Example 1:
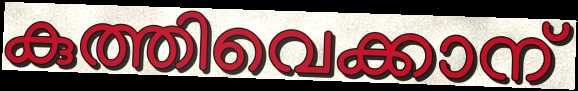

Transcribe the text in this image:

കുത്തിവെക്കാന്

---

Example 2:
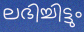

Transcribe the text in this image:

ലഭിച്ചിട്ടും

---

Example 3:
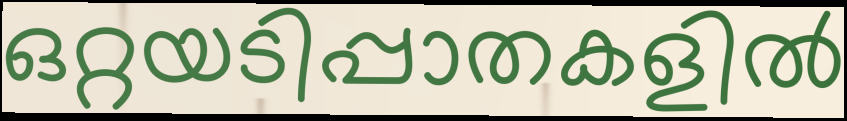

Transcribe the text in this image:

ഒറ്റയടിപ്പാതകളിൽ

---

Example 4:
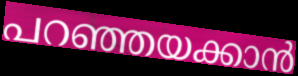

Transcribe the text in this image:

പറഞ്ഞയക്കാൻ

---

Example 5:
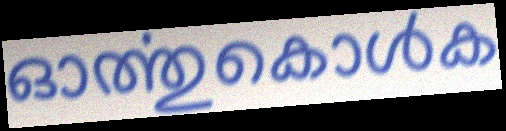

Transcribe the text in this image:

ഓൎത്തുകൊൾക